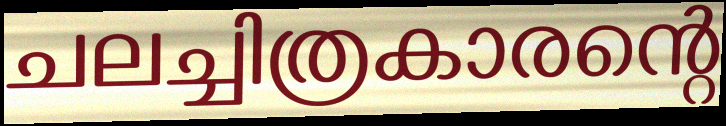
ചലച്ചിത്രകാരന്റെ